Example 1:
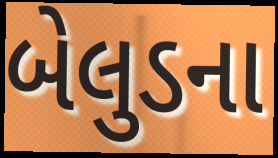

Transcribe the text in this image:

બેલુડના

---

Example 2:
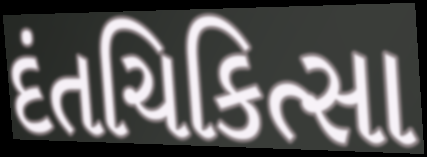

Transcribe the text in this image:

દંતચિકિત્સા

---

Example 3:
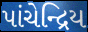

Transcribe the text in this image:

પાંચેન્દ્રિય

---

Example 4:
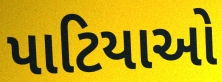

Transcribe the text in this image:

પાટિયાઓ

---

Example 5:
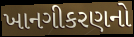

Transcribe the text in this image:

ખાનગીકરણનો